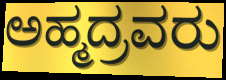
ಅಹ್ಮದ್ರವರು